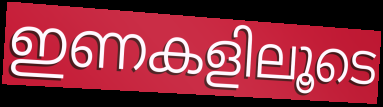
ഇണകളിലൂടെ